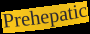
Prehepatic